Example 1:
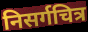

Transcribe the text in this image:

निसर्गचित्र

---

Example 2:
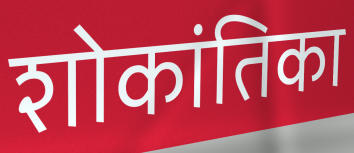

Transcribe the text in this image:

शोकांतिका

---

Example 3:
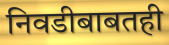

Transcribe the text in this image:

निवडीबाबतही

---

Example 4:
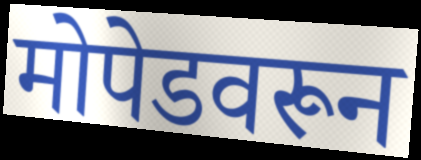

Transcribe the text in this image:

मोपेडवरून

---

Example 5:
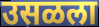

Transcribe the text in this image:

उसळला